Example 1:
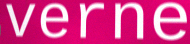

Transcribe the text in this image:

verne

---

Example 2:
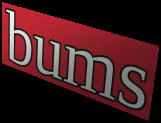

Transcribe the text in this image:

bums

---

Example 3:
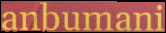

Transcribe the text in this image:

anbumani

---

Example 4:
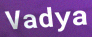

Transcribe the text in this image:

Vadya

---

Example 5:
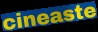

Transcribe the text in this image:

cineaste